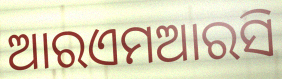
ଆରଏମଆରସି